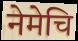
नेमेचि